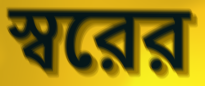
স্বরের